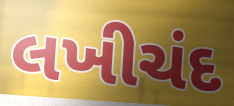
લખીચંદ